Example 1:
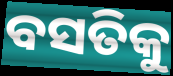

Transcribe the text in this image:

ବସତିକୁ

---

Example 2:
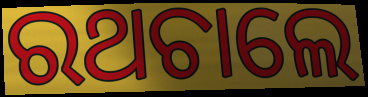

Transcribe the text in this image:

ରଥଚାଲେ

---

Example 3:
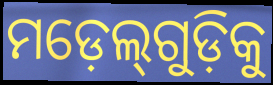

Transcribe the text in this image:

ମଡ଼େଲ୍‌ଗୁଡ଼ିକୁ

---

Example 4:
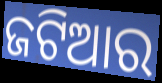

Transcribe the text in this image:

ଜଟିଆର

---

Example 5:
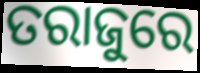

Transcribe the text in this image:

ତରାଜୁରେ